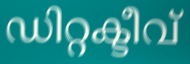
ഡിറ്റക്ടീവ്